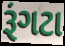
રૂંગટા